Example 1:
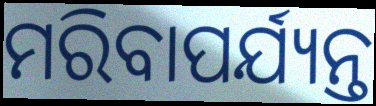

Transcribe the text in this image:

ମରିବାପର୍ଯ୍ୟନ୍ତ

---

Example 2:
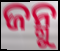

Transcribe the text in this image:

ଜନ୍ମୁ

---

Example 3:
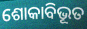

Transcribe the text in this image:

ଶୋକାବିଭୂତ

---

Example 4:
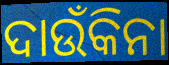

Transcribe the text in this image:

ଦାଉଁକିନା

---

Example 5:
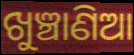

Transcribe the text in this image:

ଖୁଞ୍ଚାଣିଆ